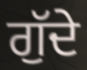
ਗੁੱਦੇ